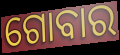
ଗୋବାର